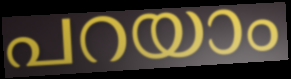
പറയാം